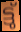
ട്ടു്